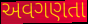
અવગણતા